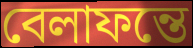
বেলাফন্তে